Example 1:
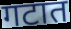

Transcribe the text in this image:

गटात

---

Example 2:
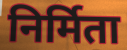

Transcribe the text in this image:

निर्मिता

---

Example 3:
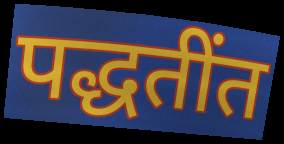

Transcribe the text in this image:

पद्धतींत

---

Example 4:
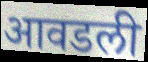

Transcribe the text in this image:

आवडली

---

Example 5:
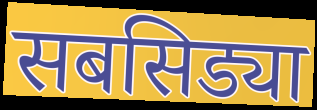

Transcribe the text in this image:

सबसिड्या